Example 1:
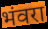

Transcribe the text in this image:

भंवरा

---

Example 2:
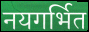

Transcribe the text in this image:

नयगर्भित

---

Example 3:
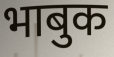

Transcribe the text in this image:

भाबुक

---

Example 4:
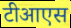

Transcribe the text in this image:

टीआएस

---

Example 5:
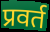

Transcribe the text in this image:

प्रवर्त